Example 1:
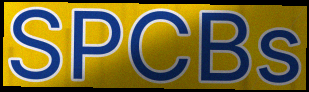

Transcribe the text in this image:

SPCBs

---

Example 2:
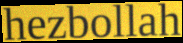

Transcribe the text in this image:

hezbollah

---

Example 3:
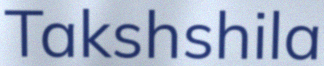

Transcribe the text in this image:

Takshshila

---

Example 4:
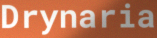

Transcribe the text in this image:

Drynaria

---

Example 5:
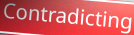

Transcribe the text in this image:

Contradicting